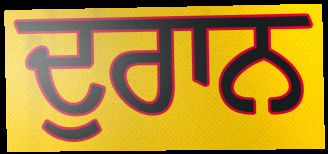
ਦੁਰਾਨ